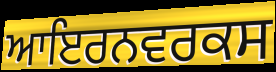
ਆਇਰਨਵਰਕਸ